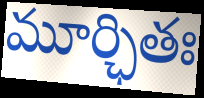
మూర్ఛితః